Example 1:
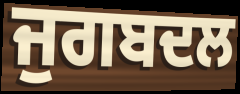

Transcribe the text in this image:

ਜੁਗਬਦਲ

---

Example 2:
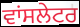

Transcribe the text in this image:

ਵਾਂਸਲੇਟਰ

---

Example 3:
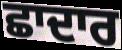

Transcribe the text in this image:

ਛਾਦਾਰ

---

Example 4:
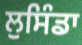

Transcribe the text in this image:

ਲੁਸਿੰਡਾ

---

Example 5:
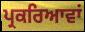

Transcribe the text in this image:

ਪ੍ਰਕਰਿਆਵਾਂ